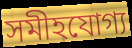
সমীহযোগ্য